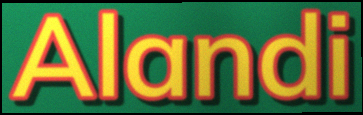
Alandi